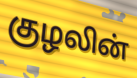
குழலின்